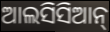
ଆଲସିସିଆନ୍